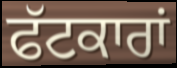
ਫੱਟਕਾਰਾਂ